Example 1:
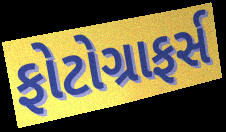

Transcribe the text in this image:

ફોટોગ્રાફર્સ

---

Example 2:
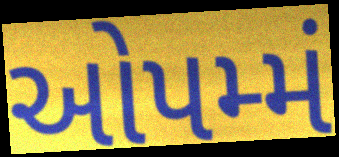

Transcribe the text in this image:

ઓપમ્મં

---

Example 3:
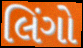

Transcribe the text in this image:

લિંગો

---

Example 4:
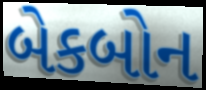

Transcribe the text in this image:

બેકબોન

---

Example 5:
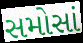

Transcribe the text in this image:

સમોસાં